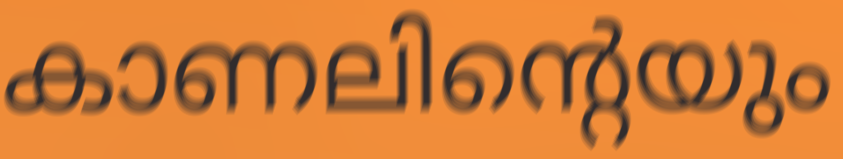
കാണലിന്റെയും